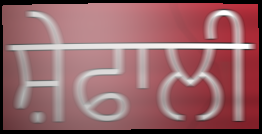
ਸ਼ੇਫਾਲੀ